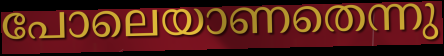
പോലെയാണതെന്നു